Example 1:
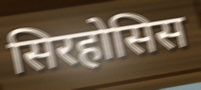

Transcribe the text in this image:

सिरहोसिस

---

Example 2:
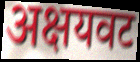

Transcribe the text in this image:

अक्षयवट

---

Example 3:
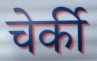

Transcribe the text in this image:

चेर्की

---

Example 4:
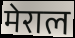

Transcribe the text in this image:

मेराल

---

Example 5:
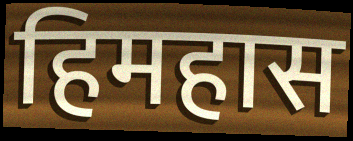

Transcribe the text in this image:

हिमहास